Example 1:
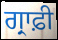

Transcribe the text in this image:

ਗ੍ਰਾਫ਼ੀ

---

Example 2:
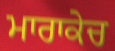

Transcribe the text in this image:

ਮਾਰਾਕੇਚ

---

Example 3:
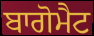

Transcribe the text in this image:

ਬਾਗੋਮੈਟ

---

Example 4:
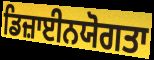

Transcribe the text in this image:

ਡਿਜ਼ਾਈਨਯੋਗਤਾ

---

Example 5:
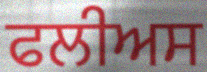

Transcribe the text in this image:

ਫਲੀਅਸ